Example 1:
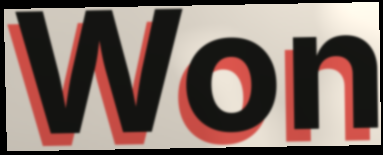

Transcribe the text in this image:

Won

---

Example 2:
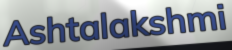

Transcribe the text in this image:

Ashtalakshmi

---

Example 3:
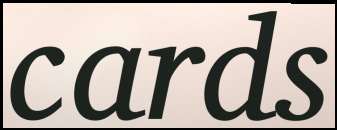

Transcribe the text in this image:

cards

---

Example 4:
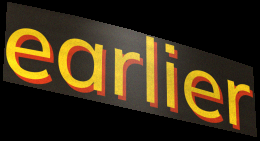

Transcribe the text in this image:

earlier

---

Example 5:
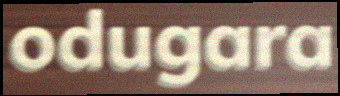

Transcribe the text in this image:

odugara